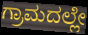
ಗ್ರಾಮದಲ್ಲೇ